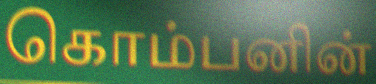
கொம்பனின்